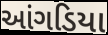
આંગડિયા